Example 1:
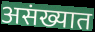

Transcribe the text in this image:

असंख्यात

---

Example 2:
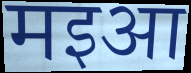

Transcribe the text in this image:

मइआ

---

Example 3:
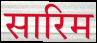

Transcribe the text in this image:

सारिम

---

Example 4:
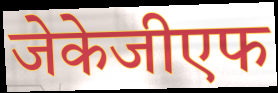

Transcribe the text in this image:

जेकेजीएफ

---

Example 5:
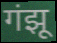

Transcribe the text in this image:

गंझू